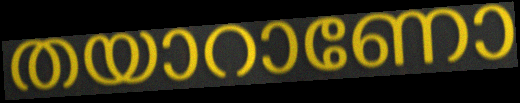
തയാറാണോ